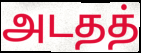
அடதத்